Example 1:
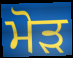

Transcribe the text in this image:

ਮੋੜ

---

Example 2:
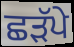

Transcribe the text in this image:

ਛੜੱਪੇ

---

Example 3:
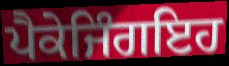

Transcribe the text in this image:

ਪੈਕੇਜਿੰਗਇਹ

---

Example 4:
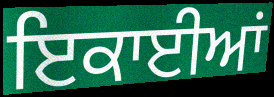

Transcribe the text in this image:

ਇਕਾਈਆਂ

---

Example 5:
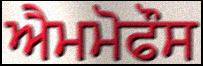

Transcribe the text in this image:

ਐਮਮੋਫੌਸ